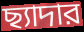
ছ্যাদার